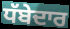
ਧੱਬੇਦਾਰ